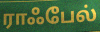
ராஃபேல்